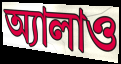
অ্যালাও